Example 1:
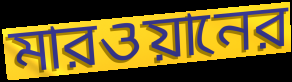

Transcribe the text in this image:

মারওয়ানের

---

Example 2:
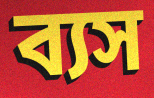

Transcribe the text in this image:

ব্যস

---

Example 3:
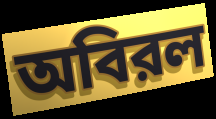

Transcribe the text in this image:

অবিরল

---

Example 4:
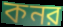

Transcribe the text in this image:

কনর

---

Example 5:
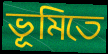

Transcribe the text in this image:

ভূমিতে